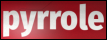
pyrrole